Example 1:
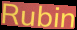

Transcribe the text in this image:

Rubin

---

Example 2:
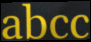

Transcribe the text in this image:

abcc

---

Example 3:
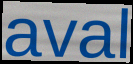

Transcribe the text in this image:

aval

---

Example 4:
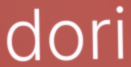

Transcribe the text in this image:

dori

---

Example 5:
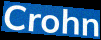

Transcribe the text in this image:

Crohn